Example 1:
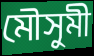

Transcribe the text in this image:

মৌসুমী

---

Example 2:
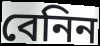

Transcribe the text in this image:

বেনিন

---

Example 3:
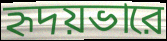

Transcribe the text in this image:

হৃদয়ভারে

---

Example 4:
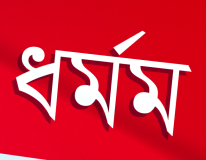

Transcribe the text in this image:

ধর্মম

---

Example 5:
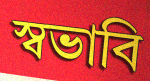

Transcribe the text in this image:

স্বভাবি